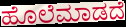
ಹೊಲೆಮಾಡದೆ